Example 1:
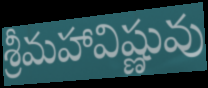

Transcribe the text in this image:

శ్రీమహావిష్ణువు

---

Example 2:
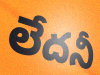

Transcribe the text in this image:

లేదనీ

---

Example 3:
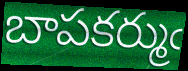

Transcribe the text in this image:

బాపకర్ముఁ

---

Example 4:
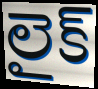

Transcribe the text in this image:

లైక్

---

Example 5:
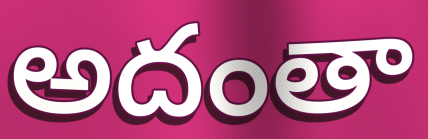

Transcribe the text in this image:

అదంతా